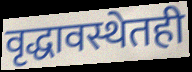
वृद्धावस्थेतही